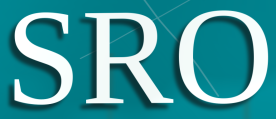
SRO